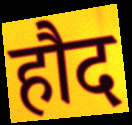
हौद